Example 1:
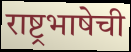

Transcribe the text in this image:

राष्ट्रभाषेची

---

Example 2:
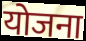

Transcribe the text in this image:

योजना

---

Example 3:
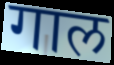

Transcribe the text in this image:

गाल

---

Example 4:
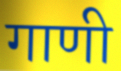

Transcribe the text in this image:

गाणी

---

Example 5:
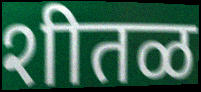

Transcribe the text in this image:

शीतळ